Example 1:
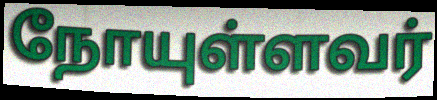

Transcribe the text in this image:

நோயுள்ளவர்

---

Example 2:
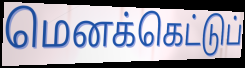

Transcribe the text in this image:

மெனக்கெட்டுப்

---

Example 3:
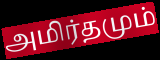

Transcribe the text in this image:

அமிர்தமும்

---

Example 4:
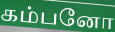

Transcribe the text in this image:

கம்பனோ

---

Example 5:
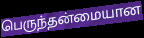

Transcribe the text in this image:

பெருந்தன்மையான